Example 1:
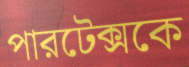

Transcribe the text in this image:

পারটেক্সকে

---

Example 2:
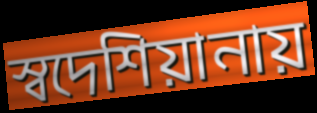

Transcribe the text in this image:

স্বদেশিয়ানায়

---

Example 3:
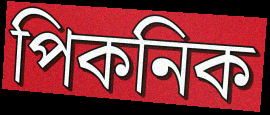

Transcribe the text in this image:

পিকনিক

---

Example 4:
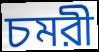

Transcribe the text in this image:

চমরী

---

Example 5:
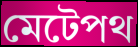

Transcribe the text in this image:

মেটেপথ